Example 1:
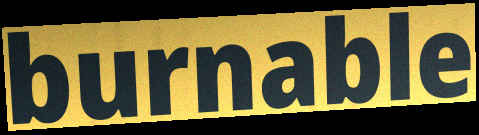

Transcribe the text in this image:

burnable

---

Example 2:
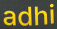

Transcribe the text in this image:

adhi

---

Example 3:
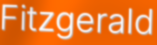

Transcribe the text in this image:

Fitzgerald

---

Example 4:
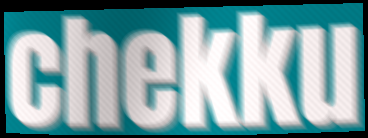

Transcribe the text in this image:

chekku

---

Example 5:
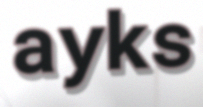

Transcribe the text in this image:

ayks